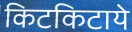
किटकिटाये